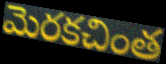
మెరకచింత